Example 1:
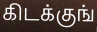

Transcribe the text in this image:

கிடக்குங்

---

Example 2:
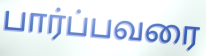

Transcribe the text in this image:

பார்ப்பவரை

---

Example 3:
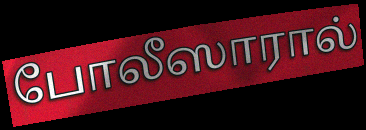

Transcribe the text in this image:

போலீஸாரால்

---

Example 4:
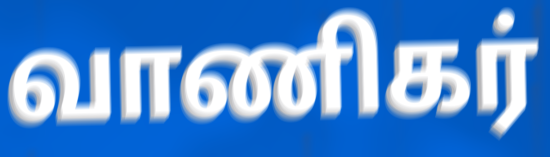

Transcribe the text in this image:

வாணிகர்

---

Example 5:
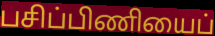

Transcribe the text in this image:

பசிப்பிணியைப்